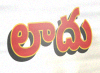
లాదు